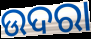
ଉଦରା